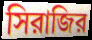
সিরাজির